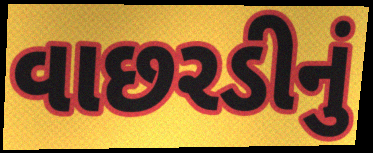
વાછરડીનું